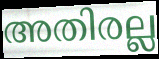
അതിരല്ല